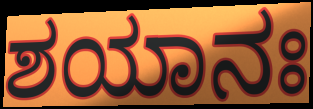
ಶಯಾನಃ